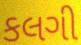
કલગી